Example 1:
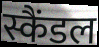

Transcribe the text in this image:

स्कैंडल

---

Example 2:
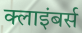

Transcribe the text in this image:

क्लाइंबर्स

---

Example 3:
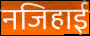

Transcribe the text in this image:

नजिहाई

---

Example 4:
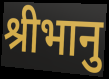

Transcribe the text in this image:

श्रीभानु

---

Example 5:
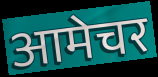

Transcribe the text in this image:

आमेचर